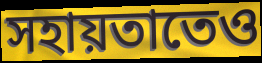
সহায়তাতেও